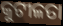
କୁଟୀଳତା